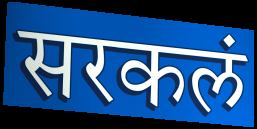
सरकलं